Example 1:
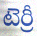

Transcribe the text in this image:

టెర్రీ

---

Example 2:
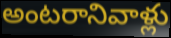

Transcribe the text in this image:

అంటరానివాళ్లు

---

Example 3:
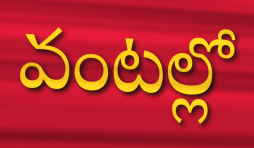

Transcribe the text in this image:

వంటల్లో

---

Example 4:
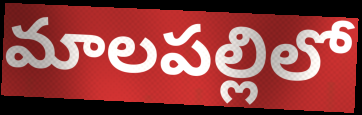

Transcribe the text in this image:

మాలపల్లిలో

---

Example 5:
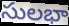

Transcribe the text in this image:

సులభా